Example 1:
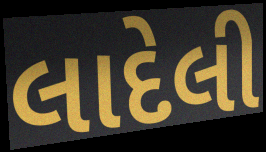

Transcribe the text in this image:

લાદેલી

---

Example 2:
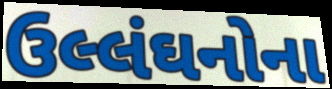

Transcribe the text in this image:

ઉલ્લંઘનોના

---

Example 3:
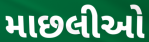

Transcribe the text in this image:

માછલીઓ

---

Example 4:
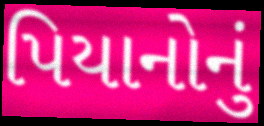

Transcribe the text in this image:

પિયાનોનું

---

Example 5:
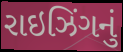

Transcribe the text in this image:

રાઇઝિંગનું